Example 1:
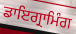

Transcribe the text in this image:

ਡਾਇਗ੍ਰਾਮਿੰਗ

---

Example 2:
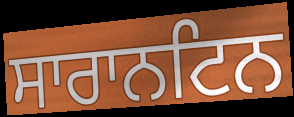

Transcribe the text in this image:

ਸਾਰਾਨਟਿਨ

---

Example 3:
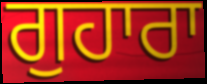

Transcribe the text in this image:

ਗੁਹਾਰਾ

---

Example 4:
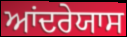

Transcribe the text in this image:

ਆਂਦਰੇਯਾਸ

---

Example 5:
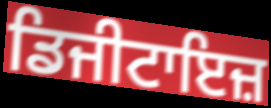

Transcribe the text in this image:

ਡਿਜੀਟਾਇਜ਼